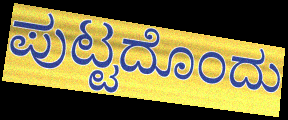
ಪುಟ್ಟದೊಂದು